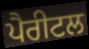
ਪੈਰੀਟਲ